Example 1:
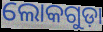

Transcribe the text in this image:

ଲୋକଗୁଡ଼ା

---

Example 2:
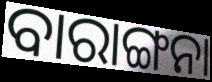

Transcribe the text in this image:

ବାରାଙ୍ଗନା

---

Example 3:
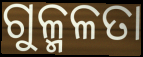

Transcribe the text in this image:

ଗୁଳ୍ମଳତା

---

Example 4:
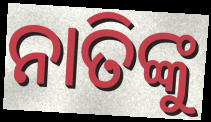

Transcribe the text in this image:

ନାତିଙ୍କୁ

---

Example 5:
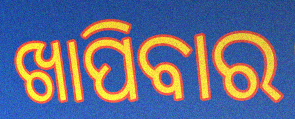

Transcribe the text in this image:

ଖାପିବାର